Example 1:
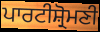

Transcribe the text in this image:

ਪਾਰਟੀਸ਼੍ਰੋਮਣੀ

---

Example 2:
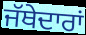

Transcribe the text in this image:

ਜੱਥੇਦਾਰਾਂ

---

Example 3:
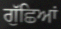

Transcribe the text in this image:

ਗੁੱਛਿਆਂ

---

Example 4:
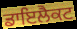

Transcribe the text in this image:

ਡਾਇਲੈਕਟ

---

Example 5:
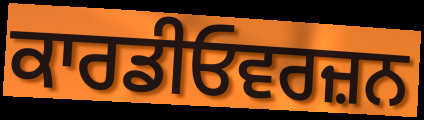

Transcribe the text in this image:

ਕਾਰਡੀਓਵਰਜ਼ਨ